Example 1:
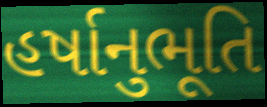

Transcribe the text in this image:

હર્ષાનુભૂતિ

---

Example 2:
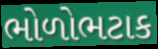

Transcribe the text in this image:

ભોળોભટાક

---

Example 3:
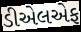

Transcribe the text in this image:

ડીએલએફ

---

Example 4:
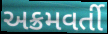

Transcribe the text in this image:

અક્રમવર્તી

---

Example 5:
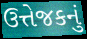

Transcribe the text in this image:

ઉત્તેજકનું